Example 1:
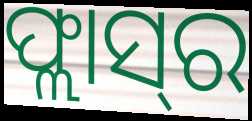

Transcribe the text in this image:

ଫ୍ଲାସ୍‌ର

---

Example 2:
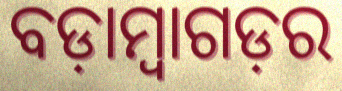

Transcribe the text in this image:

ବଡ଼ାମ୍ବାଗଡ଼ର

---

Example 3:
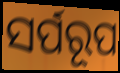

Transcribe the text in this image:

ସର୍ପରୂପ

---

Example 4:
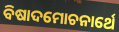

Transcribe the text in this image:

ବିଷାଦମୋଚନାର୍ଥେ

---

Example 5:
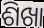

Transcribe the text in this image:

ଶିଖା